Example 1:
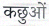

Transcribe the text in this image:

कछुओं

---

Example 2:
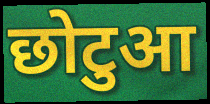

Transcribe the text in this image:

छोटुआ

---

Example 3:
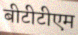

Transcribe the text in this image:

बीटीटीएम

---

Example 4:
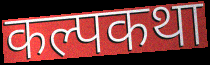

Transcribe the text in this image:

कल्पकथा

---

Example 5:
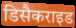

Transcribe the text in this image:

डिसैकराइड